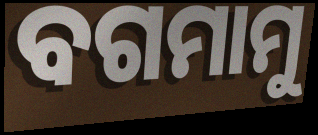
ବଗମାମୁ